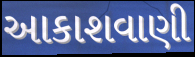
આકાશવાણી